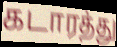
கடாரத்து